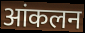
आंकलन